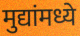
मुद्यांमध्ये